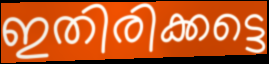
ഇതിരിക്കട്ടെ